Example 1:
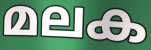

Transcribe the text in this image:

മലക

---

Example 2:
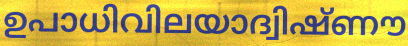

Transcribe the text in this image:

ഉപാധിവിലയാദ്വിഷ്ണൗ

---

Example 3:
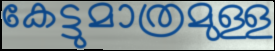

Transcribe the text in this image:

കേട്ടുമാത്രമുള്ള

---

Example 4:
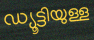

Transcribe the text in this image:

ഡ്യൂട്ടിയുള്ള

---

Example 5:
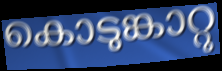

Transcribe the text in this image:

കൊടുങ്കാറ്റു